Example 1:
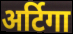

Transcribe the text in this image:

अर्टिगा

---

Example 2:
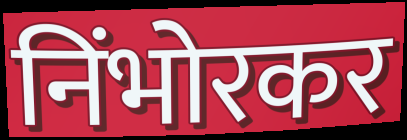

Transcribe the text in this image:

निंभोरकर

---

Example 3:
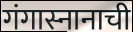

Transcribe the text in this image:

गंगास्नानाची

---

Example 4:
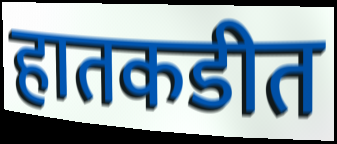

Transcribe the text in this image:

हातकडीत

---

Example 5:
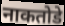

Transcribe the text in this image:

नाकतोडे